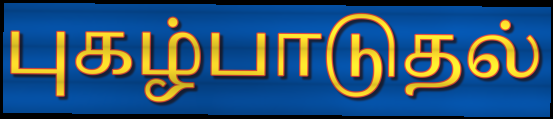
புகழ்பாடுதல்